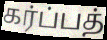
கர்ப்பத்